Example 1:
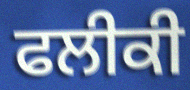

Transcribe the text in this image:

ਫਲੀਕੀ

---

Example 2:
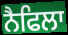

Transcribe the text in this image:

ਨੈਫਿਲਾ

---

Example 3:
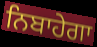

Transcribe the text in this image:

ਨਿਬਾਹੇਗਾ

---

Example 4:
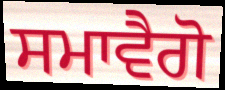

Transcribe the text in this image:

ਸਮਾਵੈਗੋ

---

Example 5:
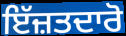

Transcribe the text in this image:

ਇੱਜ਼ਤਦਾਰੋ